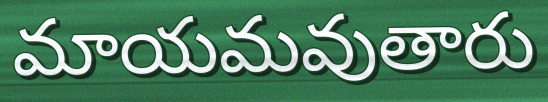
మాయమవుతారు